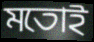
মতোই